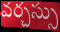
వర్చస్సు